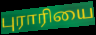
புராரியை